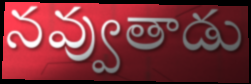
నవ్వుతాడు